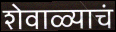
शेवाळ्याचं